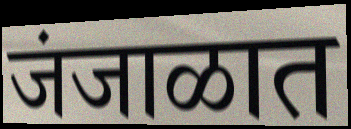
जंजाळात